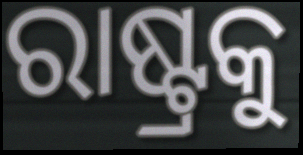
ରାଷ୍ଟ୍ରକୁ